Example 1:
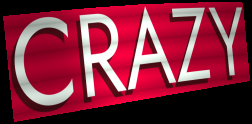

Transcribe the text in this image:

CRAZY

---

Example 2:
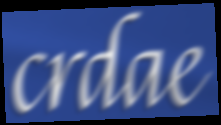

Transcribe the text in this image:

crdae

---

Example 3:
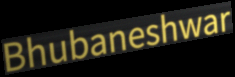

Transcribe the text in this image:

Bhubaneshwar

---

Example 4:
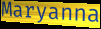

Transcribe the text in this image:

Maryanna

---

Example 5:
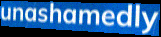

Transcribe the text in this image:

unashamedly